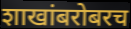
शाखांबरोबरच